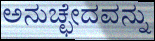
ಅನುಚ್ಛೇದವನ್ನು